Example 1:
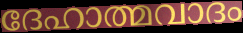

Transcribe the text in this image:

ദേഹാത്മവാദം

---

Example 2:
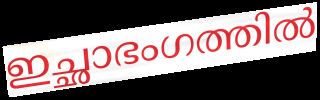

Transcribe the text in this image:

ഇച്ഛാഭംഗത്തിൽ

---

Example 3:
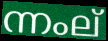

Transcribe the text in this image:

ന്നംല്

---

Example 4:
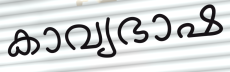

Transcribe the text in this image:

കാവ്യഭാഷ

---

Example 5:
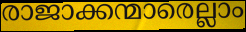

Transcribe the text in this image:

രാജാക്കന്മാരെല്ലാം